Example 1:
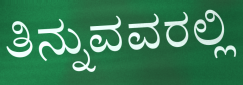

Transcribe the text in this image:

ತಿನ್ನುವವರಲ್ಲಿ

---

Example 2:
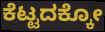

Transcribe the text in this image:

ಕೆಟ್ಟದಕ್ಕೋ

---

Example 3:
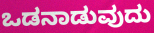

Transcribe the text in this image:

ಒಡನಾಡುವುದು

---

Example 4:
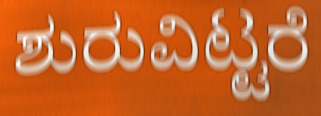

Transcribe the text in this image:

ಶುರುವಿಟ್ಟರೆ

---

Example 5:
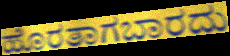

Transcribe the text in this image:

ಹೊರತಾಗಬಾರದು